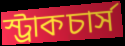
স্ট্রাকচার্স